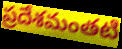
ప్రదేశమంతటి